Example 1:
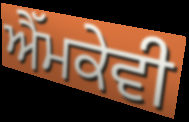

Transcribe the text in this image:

ਐੱਮਕੇਵੀ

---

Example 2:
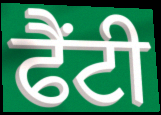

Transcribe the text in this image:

ਫੈਂਟੀ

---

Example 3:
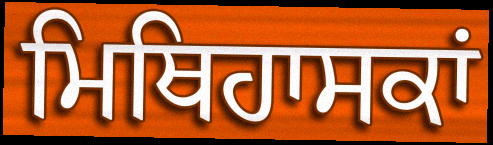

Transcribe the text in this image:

ਮਿਥਿਹਾਸਕਾਂ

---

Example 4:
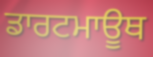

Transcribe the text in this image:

ਡਾਰਟਮਾਊਥ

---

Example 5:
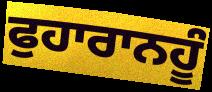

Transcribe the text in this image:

ਫੁਹਾਰਾਨਹੂੰ